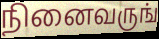
நினைவருங்